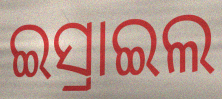
ଇସ୍ରାଇଲ